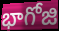
భాగోజి